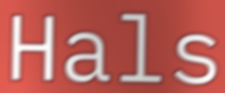
Hals